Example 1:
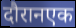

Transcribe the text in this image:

दौरानएक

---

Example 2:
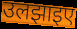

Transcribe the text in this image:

उलझाइए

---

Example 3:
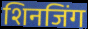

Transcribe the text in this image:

शिनजिंग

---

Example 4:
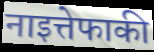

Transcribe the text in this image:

नाइत्तेफाकी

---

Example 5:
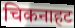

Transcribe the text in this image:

चिकनाहट